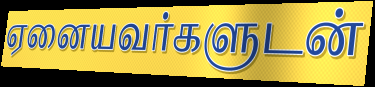
ஏனையவர்களுடன்